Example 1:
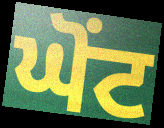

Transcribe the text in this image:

ਘੋਂਟ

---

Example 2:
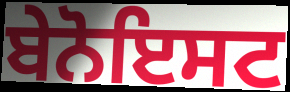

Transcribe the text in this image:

ਬੇਨੋਇਸਟ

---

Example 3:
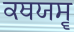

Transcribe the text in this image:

ਕਥਯਸ੍ਵ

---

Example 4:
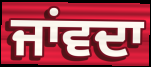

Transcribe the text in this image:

ਜਾਂਵਦਾ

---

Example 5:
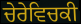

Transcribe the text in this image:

ਚੇਰੇਵਿਚਕੀ